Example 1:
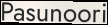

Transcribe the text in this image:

Pasunoori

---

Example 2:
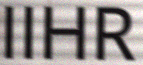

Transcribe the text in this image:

IIHR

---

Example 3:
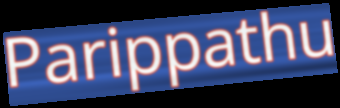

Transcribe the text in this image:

Parippathu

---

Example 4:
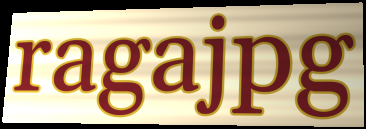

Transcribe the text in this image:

ragajpg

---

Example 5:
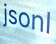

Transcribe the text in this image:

jsonl